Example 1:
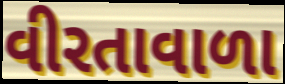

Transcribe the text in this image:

વીરતાવાળા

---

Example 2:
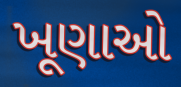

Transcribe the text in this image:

ખૂણાઓ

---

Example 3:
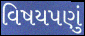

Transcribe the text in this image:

વિષયપણું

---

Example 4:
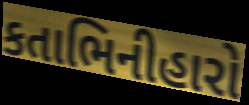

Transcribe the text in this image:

કતાભિનીહારો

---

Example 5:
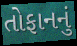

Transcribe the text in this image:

તોફાનનું